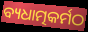
ବ୍ୟଧାତ୍ମକର୍ମଠ